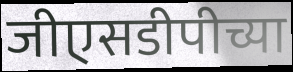
जीएसडीपीच्या